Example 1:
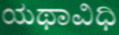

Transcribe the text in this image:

ಯಥಾವಿಧಿ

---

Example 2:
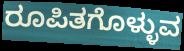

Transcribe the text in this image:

ರೂಪಿತಗೊಳ್ಳುವ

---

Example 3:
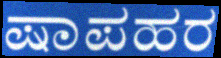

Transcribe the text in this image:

ಷಾಪಹರ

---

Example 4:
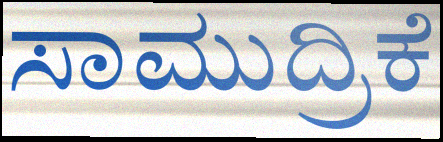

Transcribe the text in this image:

ಸಾಮುದ್ರಿಕೆ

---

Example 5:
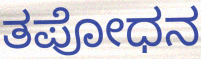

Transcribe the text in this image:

ತಪೋಧನ